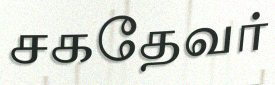
சகதேவர்